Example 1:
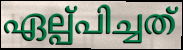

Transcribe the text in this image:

ഏല്പ്പിച്ചത്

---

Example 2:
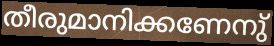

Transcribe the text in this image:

തീരുമാനിക്കണേനു്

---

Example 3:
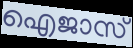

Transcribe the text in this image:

ഐജാസ്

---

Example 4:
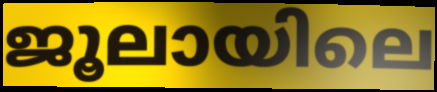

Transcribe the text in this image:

ജൂലായിലെ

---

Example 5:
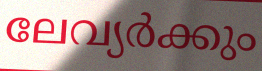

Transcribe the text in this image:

ലേവ്യർക്കും